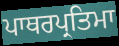
ਪਾਥਰਪ੍ਰਤਿਮਾ